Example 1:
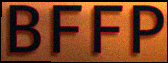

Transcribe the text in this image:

BFFP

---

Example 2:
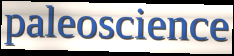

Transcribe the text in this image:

paleoscience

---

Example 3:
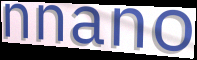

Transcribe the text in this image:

nnano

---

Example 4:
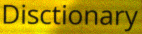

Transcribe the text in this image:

Disctionary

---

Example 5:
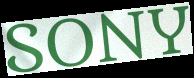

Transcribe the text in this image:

SONY